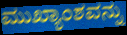
ಮುಖ್ಯಾಂಶವನ್ನು